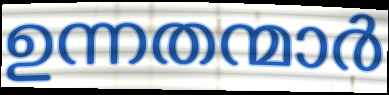
ഉന്നതന്മാർ